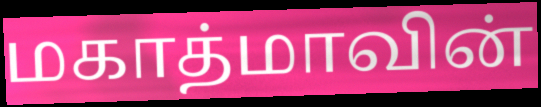
மகாத்மாவின்